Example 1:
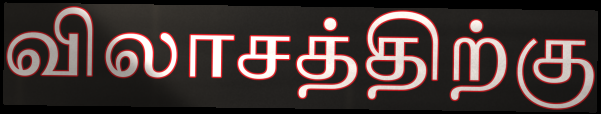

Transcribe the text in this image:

விலாசத்திற்கு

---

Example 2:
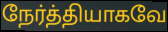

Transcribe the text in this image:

நேர்த்தியாகவே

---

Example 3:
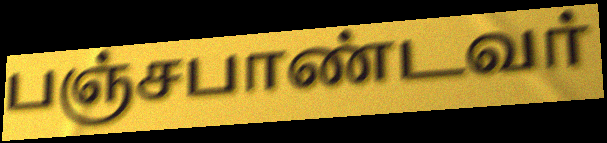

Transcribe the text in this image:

பஞ்சபாண்டவர்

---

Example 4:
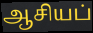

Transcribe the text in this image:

ஆசியப்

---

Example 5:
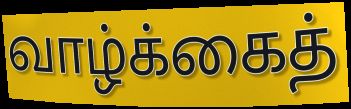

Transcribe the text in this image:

வாழ்க்கைத்